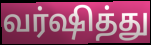
வர்ஷித்து